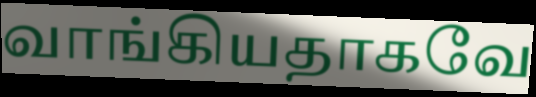
வாங்கியதாகவே